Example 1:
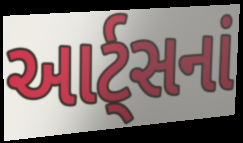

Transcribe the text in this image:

આર્ટ્સનાં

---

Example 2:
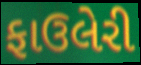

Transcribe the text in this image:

ફાઉલેરી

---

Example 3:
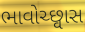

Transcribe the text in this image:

ભાવોચ્છ્વાસ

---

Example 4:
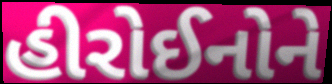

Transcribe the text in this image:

હીરોઈનોને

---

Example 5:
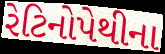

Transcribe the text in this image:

રેટિનોપેથીના